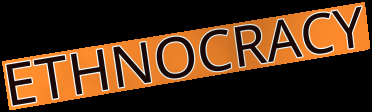
ETHNOCRACY